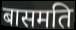
बासमति